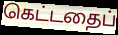
கெட்டதைப்